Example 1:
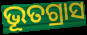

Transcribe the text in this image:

ଭୂତଗ୍ରାସ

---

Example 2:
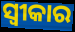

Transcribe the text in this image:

ସ୍ବୀକାର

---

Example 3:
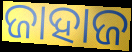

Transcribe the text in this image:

ଜାହାଜ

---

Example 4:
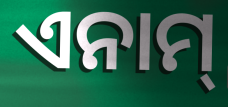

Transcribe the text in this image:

ଏନାମ୍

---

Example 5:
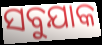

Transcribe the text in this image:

ସବୁଯାକ